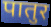
पातुर